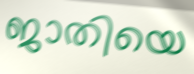
ജാതിയെ